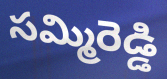
సమ్మిరెడ్డి